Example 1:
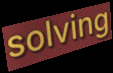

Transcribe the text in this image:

solving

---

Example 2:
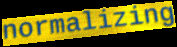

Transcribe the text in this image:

normalizing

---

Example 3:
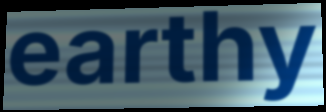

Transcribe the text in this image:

earthy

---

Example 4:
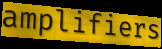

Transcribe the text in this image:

amplifiers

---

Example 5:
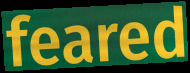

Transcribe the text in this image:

feared